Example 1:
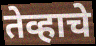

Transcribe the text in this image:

तेव्हाचे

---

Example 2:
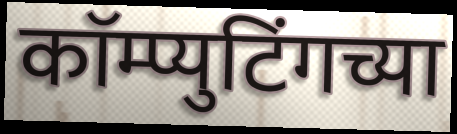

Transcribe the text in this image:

कॉम्प्युटिंगच्या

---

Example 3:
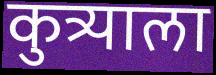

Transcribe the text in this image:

कुत्र्याला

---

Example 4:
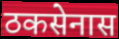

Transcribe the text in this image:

ठकसेनास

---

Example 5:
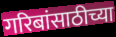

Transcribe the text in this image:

गरिबांसाठीच्या